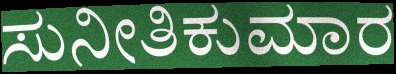
ಸುನೀತಿಕುಮಾರ